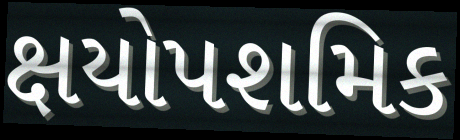
ક્ષયોપશમિક